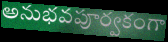
అనుభవపూర్వకంగా